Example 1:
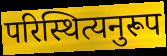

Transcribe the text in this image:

परिस्थित्यनुरूप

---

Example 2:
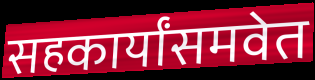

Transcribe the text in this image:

सहकार्यांसमवेत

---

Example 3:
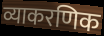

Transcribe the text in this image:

व्याकरणिक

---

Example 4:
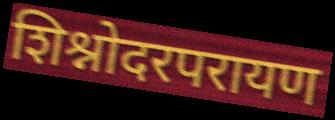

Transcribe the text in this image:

शिश्नोदरपरायण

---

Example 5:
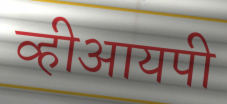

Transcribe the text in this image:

व्हीआयपी